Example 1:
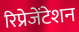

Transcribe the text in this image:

रिप्रेजेंटेशन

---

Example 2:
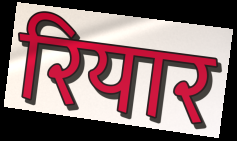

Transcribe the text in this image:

रियार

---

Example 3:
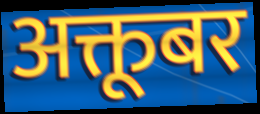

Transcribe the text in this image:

अक्तूबर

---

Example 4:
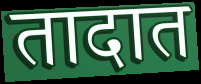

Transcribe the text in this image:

तादात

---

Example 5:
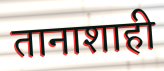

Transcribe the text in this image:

तानाशाही